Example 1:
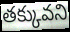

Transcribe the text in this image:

తక్కువని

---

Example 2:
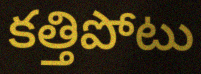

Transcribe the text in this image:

కత్తిపోటు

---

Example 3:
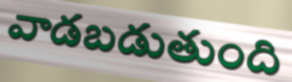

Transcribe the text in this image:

వాడబడుతుంది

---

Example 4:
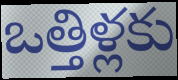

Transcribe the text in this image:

ఒత్తిళ్లకు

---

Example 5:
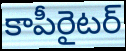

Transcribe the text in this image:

కాపీరైటర్